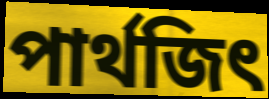
পার্থজিৎ